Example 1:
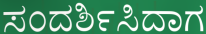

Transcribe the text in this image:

ಸಂದರ್ಶಿಸಿದಾಗ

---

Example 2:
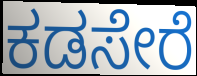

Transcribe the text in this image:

ಕಡಸೇರೆ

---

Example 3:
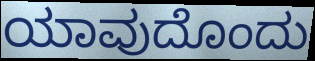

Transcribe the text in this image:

ಯಾವುದೊಂದು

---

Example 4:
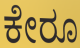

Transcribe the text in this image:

ಕೇರೂ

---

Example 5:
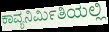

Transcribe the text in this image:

ಕಾವ್ಯನಿರ್ಮಿತಿಯಲ್ಲಿ